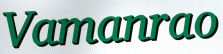
Vamanrao